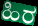
ಹಿರ